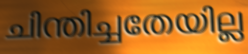
ചിന്തിച്ചതേയില്ല